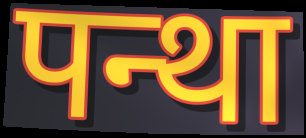
पन्‍था